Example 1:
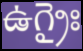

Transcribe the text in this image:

ఉగ్రైః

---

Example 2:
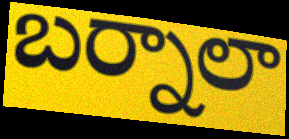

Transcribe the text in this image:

బర్నాలా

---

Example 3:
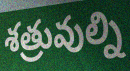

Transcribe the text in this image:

శత్రువుల్ని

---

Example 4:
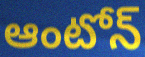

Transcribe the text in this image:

ఆంటోన్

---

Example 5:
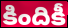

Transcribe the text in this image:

కిందికీ